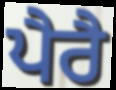
ਪੈਰੈ